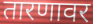
तारणावर